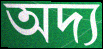
অদ্য